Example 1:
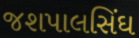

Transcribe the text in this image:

જશપાલસિંઘ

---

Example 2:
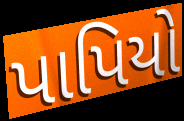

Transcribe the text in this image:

પાપિયો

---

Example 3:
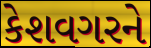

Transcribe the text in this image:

કેશવગરને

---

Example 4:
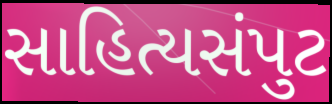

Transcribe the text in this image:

સાહિત્યસંપુટ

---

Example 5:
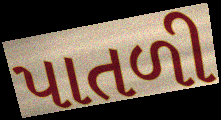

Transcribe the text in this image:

પાતળી